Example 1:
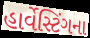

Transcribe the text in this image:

હાર્વેસ્ટિંગના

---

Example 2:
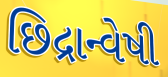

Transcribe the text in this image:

છિદ્રાન્વેષી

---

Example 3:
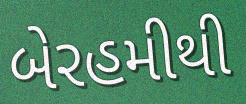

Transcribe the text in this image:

બેરહમીથી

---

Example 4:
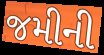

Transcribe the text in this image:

જમીની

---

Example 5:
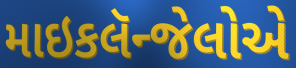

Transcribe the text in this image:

માઇકલૅન્જેલોએ